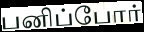
பனிப்போர்